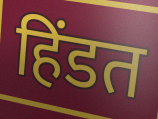
हिंडत